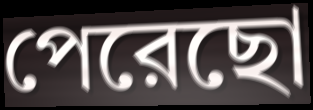
পেরেছো